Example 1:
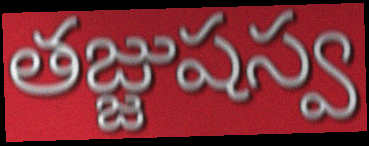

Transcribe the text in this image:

తజ్జుషస్వ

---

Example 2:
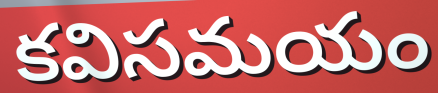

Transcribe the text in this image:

కవిసమయం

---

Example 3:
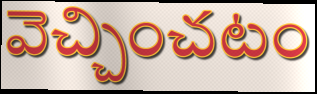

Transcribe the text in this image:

వెచ్చించటం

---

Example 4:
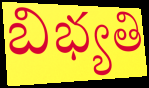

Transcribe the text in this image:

బిభ్యతి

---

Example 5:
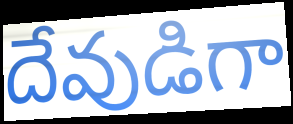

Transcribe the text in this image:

దేవుడిగా